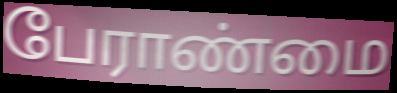
பேராண்மை